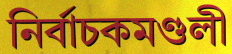
নিৰ্বাচকমণ্ডলী